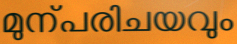
മുന്പരിചയവും